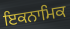
ਇਕਨਾਮਿਕ